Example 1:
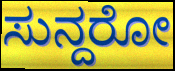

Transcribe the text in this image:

ಸುನ್ದರೋ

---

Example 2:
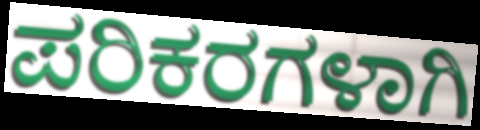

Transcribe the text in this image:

ಪರಿಕರಗಳಾಗಿ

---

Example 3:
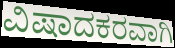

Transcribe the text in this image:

ವಿಷಾದಕರವಾಗಿ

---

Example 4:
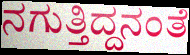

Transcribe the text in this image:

ನಗುತ್ತಿದ್ದನಂತೆ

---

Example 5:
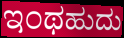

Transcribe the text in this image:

ಇಂಥಹುದು